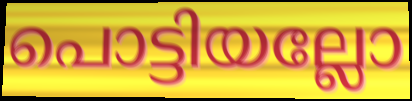
പൊട്ടിയല്ലോ